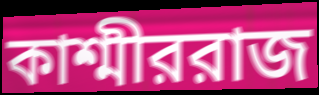
কাশ্মীররাজ